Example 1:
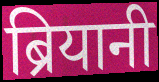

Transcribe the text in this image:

ब्रियानी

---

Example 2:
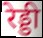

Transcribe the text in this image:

रेड्डी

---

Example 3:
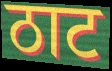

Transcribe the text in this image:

ठाट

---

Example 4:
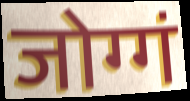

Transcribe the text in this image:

जोग्गं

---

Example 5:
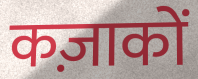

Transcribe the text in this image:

कज़ाकों